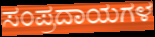
ಸಂಪ್ರದಾಯಗಳ